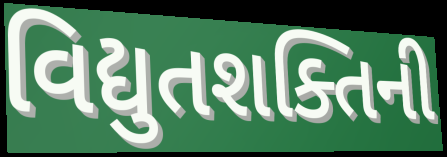
વિદ્યુતશક્તિની